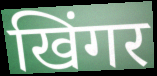
खिंगर